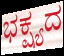
ಭಕ್ಷ್ಯದ